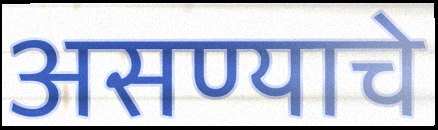
असण्याचे